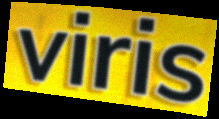
viris